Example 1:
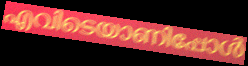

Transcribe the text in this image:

എവിടെയാണിപ്പോൾ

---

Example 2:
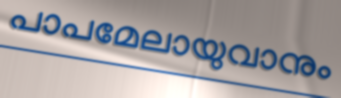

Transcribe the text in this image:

പാപമേലായുവാനും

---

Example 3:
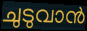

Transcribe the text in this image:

ചുടുവാൻ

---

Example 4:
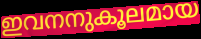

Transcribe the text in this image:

ഇവനനുകൂലമായ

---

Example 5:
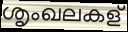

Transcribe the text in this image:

ശൃംഖലകള്